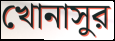
খোনাসুর